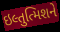
ઇલ્તુત્મિશને